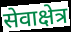
सेवाक्षेत्र